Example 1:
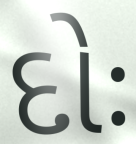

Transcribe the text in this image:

દોઃ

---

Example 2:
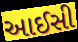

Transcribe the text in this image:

આઈસી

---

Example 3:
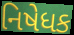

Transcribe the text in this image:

નિષેધક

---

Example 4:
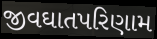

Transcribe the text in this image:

જીવઘાતપરિણામ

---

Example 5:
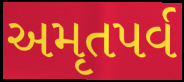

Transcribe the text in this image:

અમૃતપર્વ